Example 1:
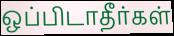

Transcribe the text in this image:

ஒப்பிடாதீர்கள்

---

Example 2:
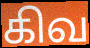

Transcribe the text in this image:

கிவ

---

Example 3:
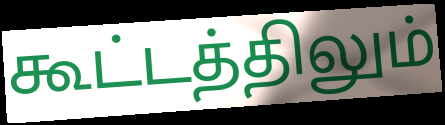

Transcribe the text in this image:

கூட்டத்திலும்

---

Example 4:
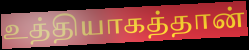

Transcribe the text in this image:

உத்தியாகத்தான்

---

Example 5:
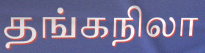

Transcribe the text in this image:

தங்கநிலா